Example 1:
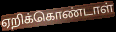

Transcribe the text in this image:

ஏறிக்கொண்டாள்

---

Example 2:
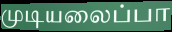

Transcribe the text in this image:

முடியலைப்பா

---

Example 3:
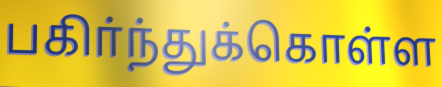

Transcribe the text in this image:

பகிர்ந்துக்கொள்ள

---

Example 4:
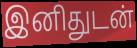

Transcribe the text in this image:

இனிதுடன்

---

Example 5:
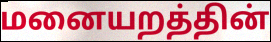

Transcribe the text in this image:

மனையறத்தின்